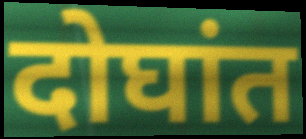
दोघांत